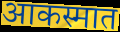
आकस्मात